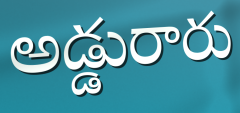
అడ్డురారు